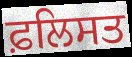
ਫ਼ਲਿਸਤ